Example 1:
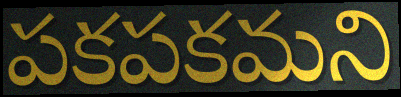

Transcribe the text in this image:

పకపకమని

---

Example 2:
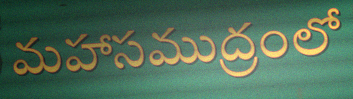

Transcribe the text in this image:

మహాసముద్రంలో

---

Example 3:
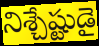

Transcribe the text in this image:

నిశ్చేష్టుడై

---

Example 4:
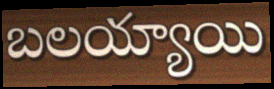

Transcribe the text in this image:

బలయ్యాయి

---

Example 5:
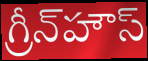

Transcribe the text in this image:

గ్రీన్‌హౌస్